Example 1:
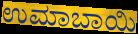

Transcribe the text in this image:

ಉಮಾಬಾಯಿ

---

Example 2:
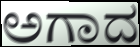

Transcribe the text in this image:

ಅಗಾದ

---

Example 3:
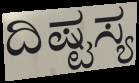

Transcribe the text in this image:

ದಿಷ್ಟಸ್ಯ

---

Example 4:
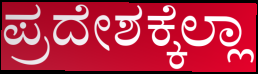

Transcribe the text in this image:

ಪ್ರದೇಶಕ್ಕೆಲ್ಲಾ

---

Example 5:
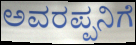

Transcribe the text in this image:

ಅವರಪ್ಪನಿಗೆ